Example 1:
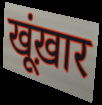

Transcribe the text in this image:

खूंख़ार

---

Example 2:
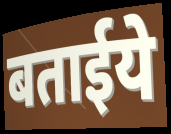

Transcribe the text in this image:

बताईये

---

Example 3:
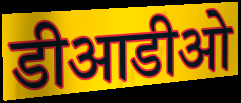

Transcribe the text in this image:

डीआडीओ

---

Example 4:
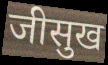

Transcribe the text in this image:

जीसुख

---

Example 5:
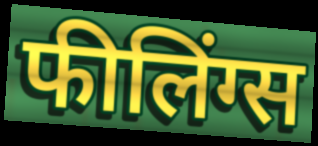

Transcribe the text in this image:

फीलिंग्स